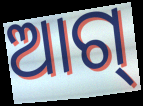
ଆଗ୍